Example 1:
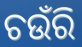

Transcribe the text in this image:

ଚଉଁରି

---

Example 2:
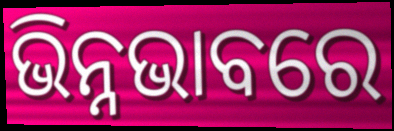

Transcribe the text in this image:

ଭିନ୍ନଭାବରେ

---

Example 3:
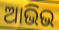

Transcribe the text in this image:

ଆଭିଭ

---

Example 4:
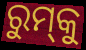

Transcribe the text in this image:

ରୁମ୍‍କୁ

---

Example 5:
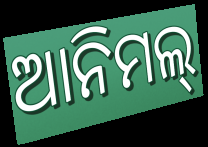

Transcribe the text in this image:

ଆନିମଲ୍